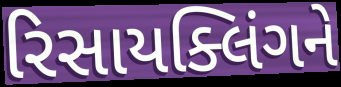
રિસાયક્લિંગને